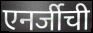
एनर्जीची